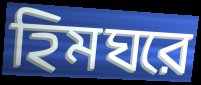
হিমঘরে